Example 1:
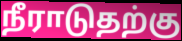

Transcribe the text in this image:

நீராடுதற்கு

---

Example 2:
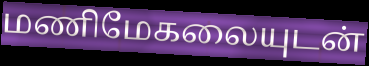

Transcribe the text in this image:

மணிமேகலையுடன்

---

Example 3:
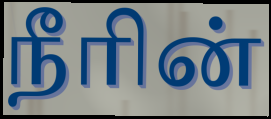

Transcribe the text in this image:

நீரின்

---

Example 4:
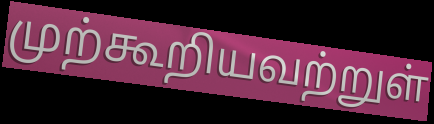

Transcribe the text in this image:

முற்கூறியவற்றுள்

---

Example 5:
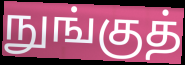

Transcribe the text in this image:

நுங்குத்